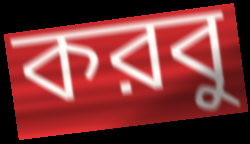
করবু